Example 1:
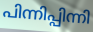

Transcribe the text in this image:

പിന്നിപ്പിന്നി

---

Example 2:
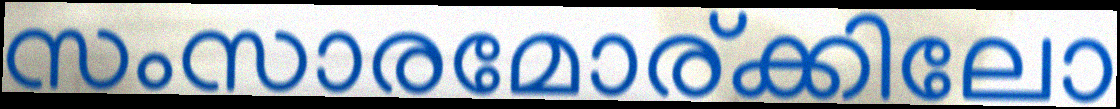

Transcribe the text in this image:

സംസാരമോര്ക്കിലോ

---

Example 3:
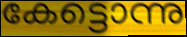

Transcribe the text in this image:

കേട്ടൊന്നു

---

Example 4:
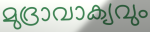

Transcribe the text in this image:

മുദ്രാവാക്യവും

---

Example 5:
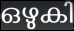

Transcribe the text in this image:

ഒഴുകി